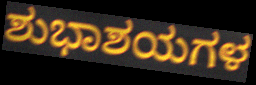
ಶುಭಾಶಯಗಳ